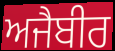
ਅਜੈਬੀਰ